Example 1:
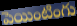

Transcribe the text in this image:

పెయింటింగు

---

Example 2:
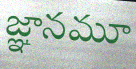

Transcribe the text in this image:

జ్ఞానమూ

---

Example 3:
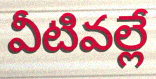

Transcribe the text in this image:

వీటివల్లే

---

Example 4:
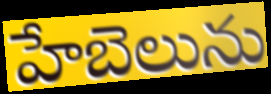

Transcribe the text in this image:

హేబెలును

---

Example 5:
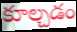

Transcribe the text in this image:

కూల్చడం